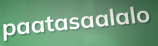
paatasaalalo